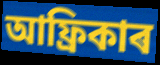
আফ্ৰিকাৰ